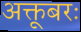
अक्तूबरः